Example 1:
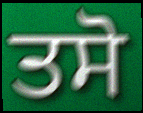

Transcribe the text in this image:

ਤਸੋ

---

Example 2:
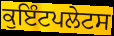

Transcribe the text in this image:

ਕੁਇੰਟਪਲੇਟਸ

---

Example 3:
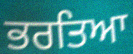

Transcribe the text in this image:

ਭਰਤਿਆ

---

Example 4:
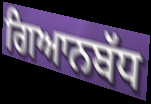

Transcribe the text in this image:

ਗਿਆਨਬੱਧ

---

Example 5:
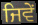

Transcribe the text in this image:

ਜਿਵੇੰ